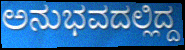
ಅನುಭವದಲ್ಲಿದ್ದ